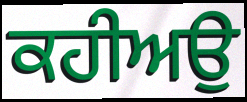
ਕਹੀਅਉ